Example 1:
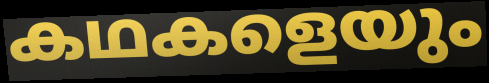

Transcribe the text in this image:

കഥകളെയും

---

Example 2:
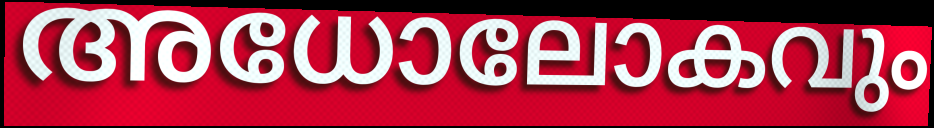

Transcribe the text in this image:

അധോലോകവും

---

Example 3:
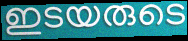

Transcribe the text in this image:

ഇടയരുടെ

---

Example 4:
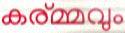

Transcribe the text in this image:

കര്മ്മവും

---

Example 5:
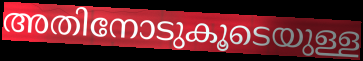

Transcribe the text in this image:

അതിനോടുകൂടെയുള്ള